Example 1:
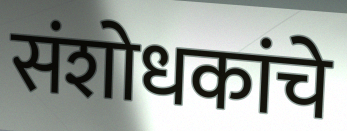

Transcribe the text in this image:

संशोधकांचे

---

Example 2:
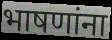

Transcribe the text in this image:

भाषणांना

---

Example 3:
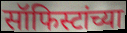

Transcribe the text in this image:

सॉफिस्टांच्या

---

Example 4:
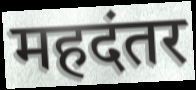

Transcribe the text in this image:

महदंतर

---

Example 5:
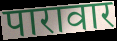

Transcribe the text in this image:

पारावार